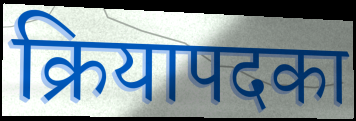
क्रियापदका